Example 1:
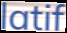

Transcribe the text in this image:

latif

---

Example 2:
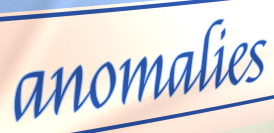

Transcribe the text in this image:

anomalies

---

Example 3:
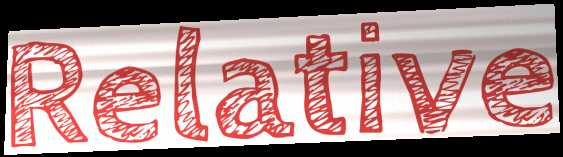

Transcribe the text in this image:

Relative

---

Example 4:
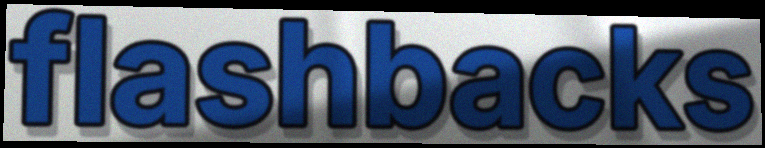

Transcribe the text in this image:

flashbacks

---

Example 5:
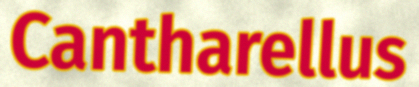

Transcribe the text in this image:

Cantharellus